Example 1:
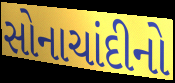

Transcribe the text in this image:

સોનાચાંદીનો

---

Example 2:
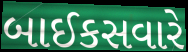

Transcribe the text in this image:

બાઈકસવારે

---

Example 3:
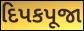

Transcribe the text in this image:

દિપકપૂજા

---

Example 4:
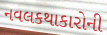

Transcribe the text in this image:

નવલકથાકારોની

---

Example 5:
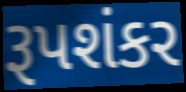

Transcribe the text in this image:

રૂપશંકર